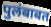
पुलंबाबत